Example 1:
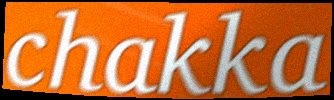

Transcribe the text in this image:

chakka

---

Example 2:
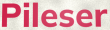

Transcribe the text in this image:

Pileser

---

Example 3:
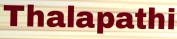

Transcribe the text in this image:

Thalapathi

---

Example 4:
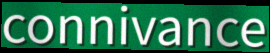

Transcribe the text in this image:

connivance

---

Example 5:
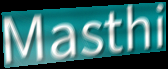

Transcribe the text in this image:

Masthi